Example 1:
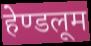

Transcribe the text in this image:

हेण्डलूम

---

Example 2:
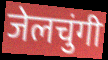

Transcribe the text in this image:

जेलचुंगी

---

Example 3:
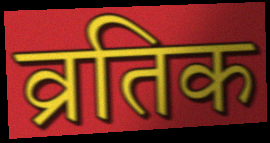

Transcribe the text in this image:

व्रतिक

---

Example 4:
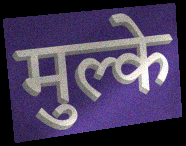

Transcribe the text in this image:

मुल्के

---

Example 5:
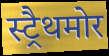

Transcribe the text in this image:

स्ट्रैथमोर